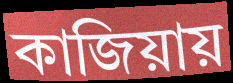
কাজিয়ায়